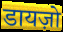
डायज़ो